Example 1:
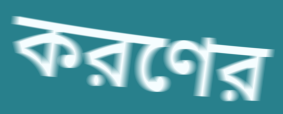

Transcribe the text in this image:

করণের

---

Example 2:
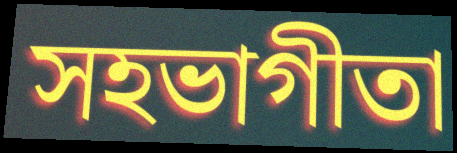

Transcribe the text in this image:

সহভাগীতা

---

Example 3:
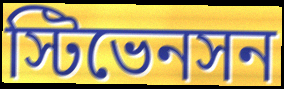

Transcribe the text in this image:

স্টিভেনসন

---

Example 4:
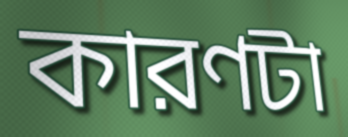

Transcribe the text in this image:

কারণটা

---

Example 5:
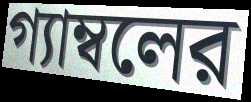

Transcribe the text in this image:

গ্যাম্বলের